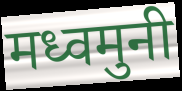
मध्वमुनी